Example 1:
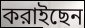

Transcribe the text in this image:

করাইছেন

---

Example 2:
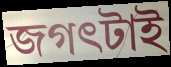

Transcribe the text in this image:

জগৎটাই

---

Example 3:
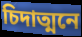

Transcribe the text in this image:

চিদাত্মনে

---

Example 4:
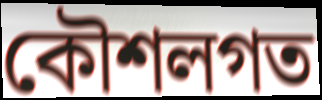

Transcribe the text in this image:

কৌশলগত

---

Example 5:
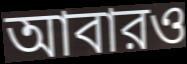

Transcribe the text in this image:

আবারও